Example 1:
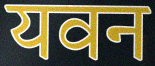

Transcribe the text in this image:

यवन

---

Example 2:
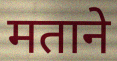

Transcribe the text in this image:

मताने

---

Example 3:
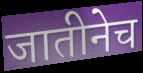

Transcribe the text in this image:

जातीनेच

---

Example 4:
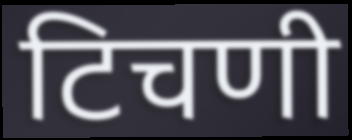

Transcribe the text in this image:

टिचणी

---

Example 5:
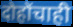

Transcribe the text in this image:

दोहोंचाही